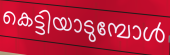
കെട്ടിയാടുമ്പോൾ